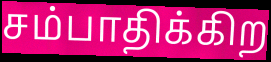
சம்பாதிக்கிற